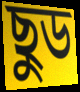
ছুড